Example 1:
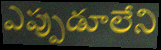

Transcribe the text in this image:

ఎప్పుడూలేని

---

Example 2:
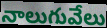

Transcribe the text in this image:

నాలుగువేలు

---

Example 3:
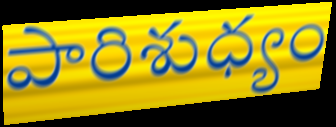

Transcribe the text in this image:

పారిశుధ్యం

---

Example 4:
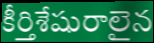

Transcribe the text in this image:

కీర్తిశేషురాలైన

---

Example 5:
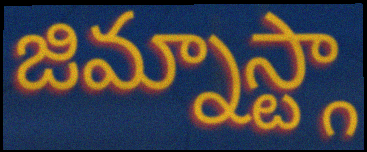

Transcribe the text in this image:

జిమ్నాస్ట్గా